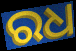
ରଧ